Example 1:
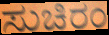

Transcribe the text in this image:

ಸುಚಿರಂ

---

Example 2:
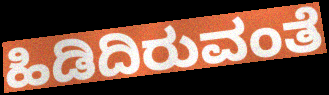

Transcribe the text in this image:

ಹಿಡಿದಿರುವಂತೆ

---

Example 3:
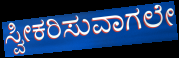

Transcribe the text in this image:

ಸ್ವೀಕರಿಸುವಾಗಲೇ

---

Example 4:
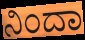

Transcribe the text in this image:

ನಿಂದಾ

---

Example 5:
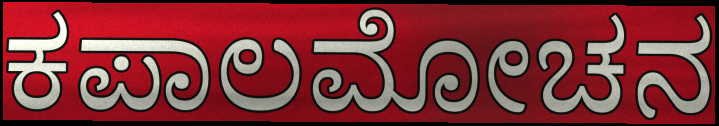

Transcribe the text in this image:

ಕಪಾಲಮೋಚನ